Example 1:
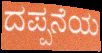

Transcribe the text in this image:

ದಪ್ಪನೆಯ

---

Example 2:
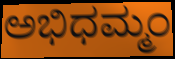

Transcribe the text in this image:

ಅಭಿಧಮ್ಮಂ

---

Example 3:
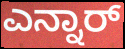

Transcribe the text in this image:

ಎನ್ನಾರ್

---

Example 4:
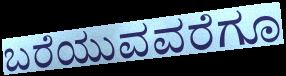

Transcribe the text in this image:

ಬರೆಯುವವರೆಗೂ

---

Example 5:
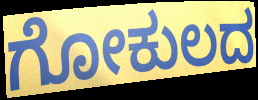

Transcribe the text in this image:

ಗೋಕುಲದ